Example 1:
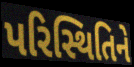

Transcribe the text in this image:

પરિસ્થિતિને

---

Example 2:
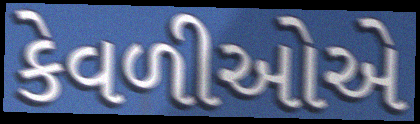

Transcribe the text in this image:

કેવળીઓએ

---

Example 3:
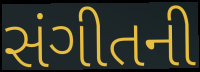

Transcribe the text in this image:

સંગીતની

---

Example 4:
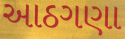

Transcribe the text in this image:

આઠગણા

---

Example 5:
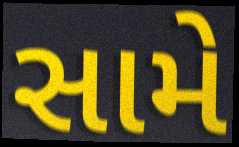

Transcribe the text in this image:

સામે